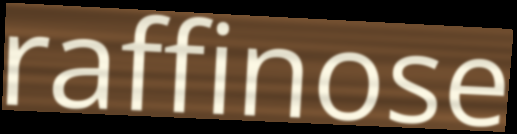
raffinose